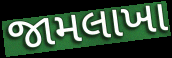
જામલાખા